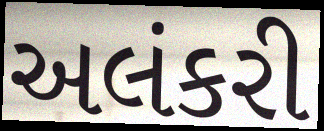
અલંકરી